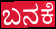
ಬನಕೆ